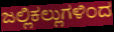
ಜಲ್ಲಿಕಲ್ಲುಗಳಿಂದ